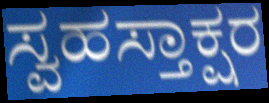
ಸ್ವಹಸ್ತಾಕ್ಷರ